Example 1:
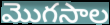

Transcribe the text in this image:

మొగసాల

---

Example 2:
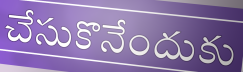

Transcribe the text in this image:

చేసుకొనేందుకు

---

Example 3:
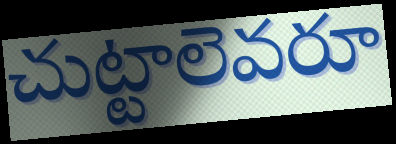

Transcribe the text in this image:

చుట్టాలెవరూ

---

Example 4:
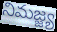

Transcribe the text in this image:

నిమజ్జ్య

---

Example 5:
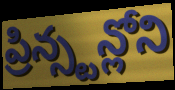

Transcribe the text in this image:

ప్రిన్స్టన్లోని